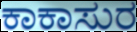
ಕಾಕಾಸುರ